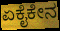
ಏಕೈಕೇನ